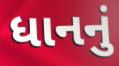
ધાનનું